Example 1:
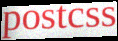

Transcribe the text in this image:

postcss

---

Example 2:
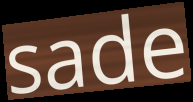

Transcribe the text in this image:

sade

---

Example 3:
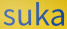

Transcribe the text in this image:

suka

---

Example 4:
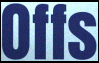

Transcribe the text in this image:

Offs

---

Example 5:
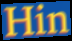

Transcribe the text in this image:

Hin